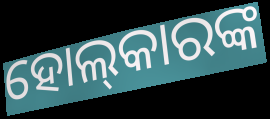
ହୋଲ୍‍କାରଙ୍କ